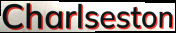
Charlseston